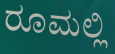
ರೂಮಲ್ಲಿ